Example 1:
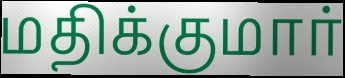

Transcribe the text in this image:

மதிக்குமார்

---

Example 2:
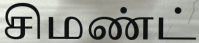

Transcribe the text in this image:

சிமண்ட்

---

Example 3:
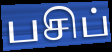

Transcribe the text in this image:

பசிப்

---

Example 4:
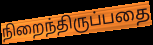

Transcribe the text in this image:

நிறைந்திருப்பதை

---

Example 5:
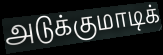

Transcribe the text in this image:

அடுக்குமாடிக்